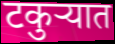
टकुर्‍यात